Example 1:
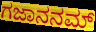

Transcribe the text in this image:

ಗಜಾನನಮ್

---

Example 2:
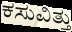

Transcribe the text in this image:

ಕಸುವಿತ್ತು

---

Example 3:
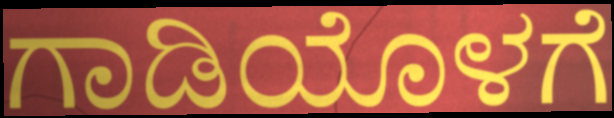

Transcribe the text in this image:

ಗಾಡಿಯೊಳಗೆ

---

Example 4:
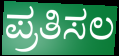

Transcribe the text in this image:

ಪ್ರತಿಸಲ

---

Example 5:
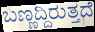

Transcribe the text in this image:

ಬಣ್ಣದ್ದಿರುತ್ತದೆ